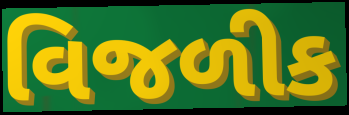
વિજળીક